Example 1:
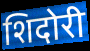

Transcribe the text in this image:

शिदोरी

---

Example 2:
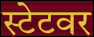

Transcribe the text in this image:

स्टेटवर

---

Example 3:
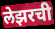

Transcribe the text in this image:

लेझरची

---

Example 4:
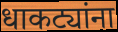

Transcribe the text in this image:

धाकट्यांना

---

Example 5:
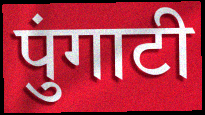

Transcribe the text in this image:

पुंगाटी